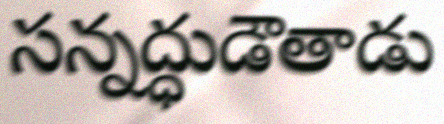
సన్నద్ధుడౌతాడు